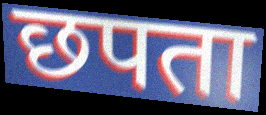
छपता